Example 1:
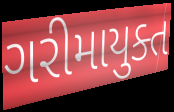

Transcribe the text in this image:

ગરીમાયુક્ત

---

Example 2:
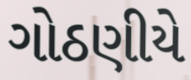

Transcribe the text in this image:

ગોઠણીયે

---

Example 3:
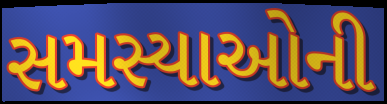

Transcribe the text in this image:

સમસ્યાઓની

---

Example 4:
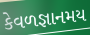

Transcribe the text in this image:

કેવળજ્ઞાનમય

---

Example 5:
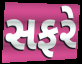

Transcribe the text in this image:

સફરે